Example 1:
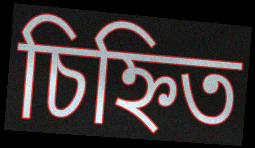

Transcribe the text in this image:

চিহ্নিত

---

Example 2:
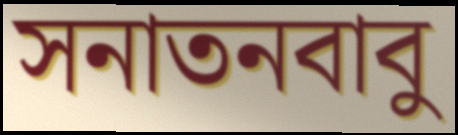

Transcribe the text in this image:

সনাতনবাবু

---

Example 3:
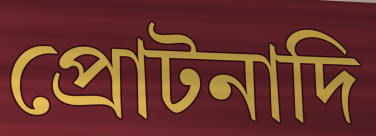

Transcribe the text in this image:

প্রোটনাদি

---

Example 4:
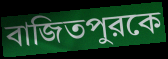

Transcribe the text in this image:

বাজিতপুরকে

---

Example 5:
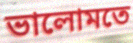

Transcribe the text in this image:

ভালোমতে